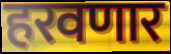
हरवणार